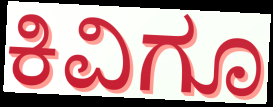
ಕಿವಿಗೂ